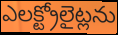
ఎలక్ట్రోలైట్లను